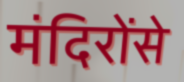
मंदिरोंसे